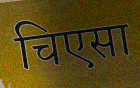
चिएसा